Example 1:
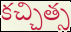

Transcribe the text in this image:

కచ్చిత్స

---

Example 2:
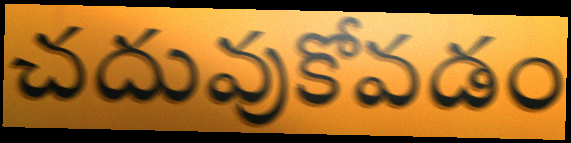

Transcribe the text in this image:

చదువుకోవడం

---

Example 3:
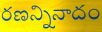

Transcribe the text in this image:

రణన్నినాదం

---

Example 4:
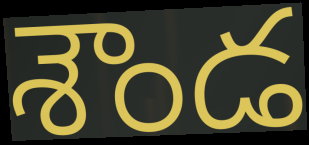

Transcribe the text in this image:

శౌండ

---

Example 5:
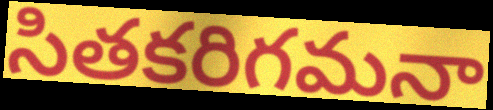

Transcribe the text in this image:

సితకరిగమనా